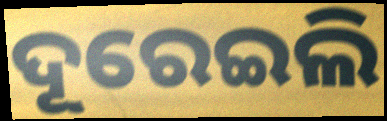
ଦୂରେଇଲି